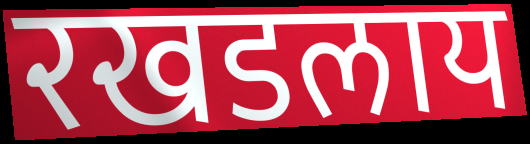
रखडलाय